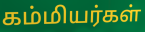
கம்மியர்கள்